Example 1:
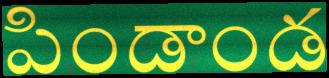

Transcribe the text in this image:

పిండాండ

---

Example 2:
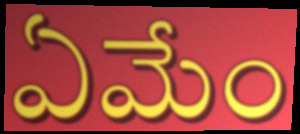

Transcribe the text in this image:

ఏమేం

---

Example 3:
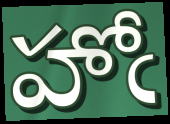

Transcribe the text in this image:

హోఁ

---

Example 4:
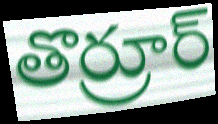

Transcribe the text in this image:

తొర్రూర్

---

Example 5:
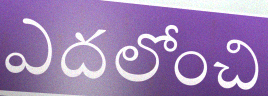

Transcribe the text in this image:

ఎదలోంచి